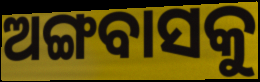
ଅଙ୍ଗବାସକୁ